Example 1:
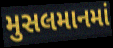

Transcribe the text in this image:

મુસલમાનમાં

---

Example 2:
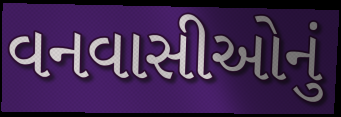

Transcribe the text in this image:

વનવાસીઓનું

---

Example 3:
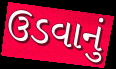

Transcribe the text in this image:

ઉડવાનું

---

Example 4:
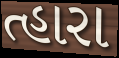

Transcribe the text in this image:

ત્હારા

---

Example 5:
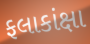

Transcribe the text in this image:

ફલાકાંક્ષા